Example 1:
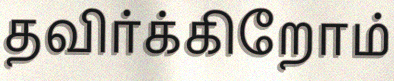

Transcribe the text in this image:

தவிர்க்கிறோம்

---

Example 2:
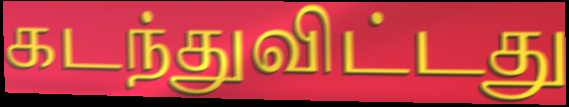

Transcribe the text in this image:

கடந்துவிட்டது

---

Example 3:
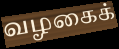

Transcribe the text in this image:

வழகைக்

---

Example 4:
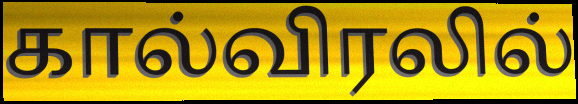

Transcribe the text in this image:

கால்விரலில்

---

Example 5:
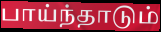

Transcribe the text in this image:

பாய்ந்தாடும்